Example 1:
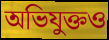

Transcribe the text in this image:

অভিযুক্তও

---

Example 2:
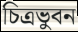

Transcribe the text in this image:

চিত্রভুবন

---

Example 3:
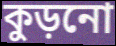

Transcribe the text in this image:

কুড়নো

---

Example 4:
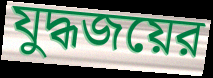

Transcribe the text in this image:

যুদ্ধজয়ের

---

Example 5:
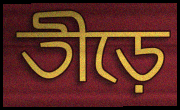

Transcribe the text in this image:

তীড়ে